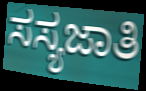
ಸಸ್ಯಜಾತಿ